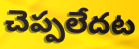
చెప్పలేదట